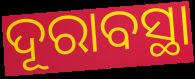
ଦୂରାବସ୍ଥା